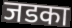
जडका